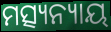
ମତ୍ସ୍ୟନ୍ୟାୟ